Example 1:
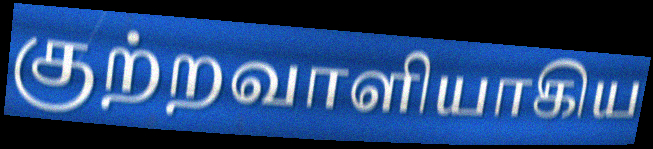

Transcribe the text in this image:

குற்றவாளியாகிய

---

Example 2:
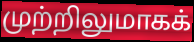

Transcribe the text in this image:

முற்றிலுமாகக்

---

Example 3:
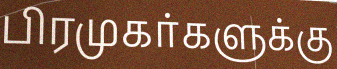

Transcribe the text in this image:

பிரமுகர்களுக்கு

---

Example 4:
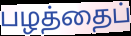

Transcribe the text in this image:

பழத்தைப்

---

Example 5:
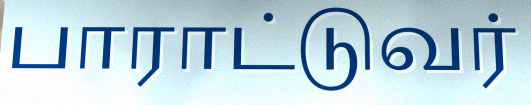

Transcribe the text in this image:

பாராட்டுவர்